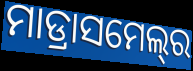
ମାଡ୍ରାସମେଲ୍‍ର